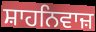
ਸ਼ਾਹਨਿਵਾਜ਼